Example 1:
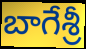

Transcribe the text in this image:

బాగేశ్రీ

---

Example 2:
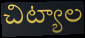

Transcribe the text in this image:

చిట్యాల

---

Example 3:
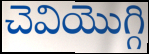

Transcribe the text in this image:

చెవియొగ్గి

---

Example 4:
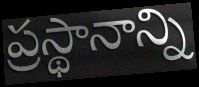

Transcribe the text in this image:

ప్రస్థానాన్ని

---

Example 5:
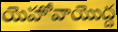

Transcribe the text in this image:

యెహోవాయొద్ద